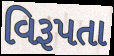
વિરૂપતા